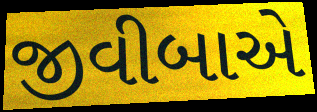
જીવીબાએ